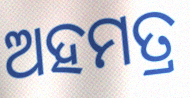
ଅହମତ୍ର